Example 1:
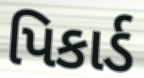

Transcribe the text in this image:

પિકાર્ડ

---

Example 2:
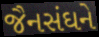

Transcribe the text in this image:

જૈનસંઘને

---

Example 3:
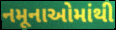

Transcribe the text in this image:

નમૂનાઓમાંથી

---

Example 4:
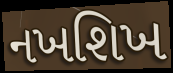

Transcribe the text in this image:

નખશિખ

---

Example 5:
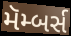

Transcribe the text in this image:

મૅમ્બર્સ